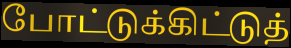
போட்டுக்கிட்டுத்